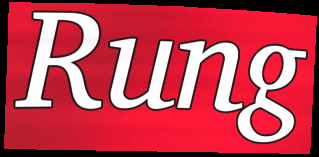
Rung